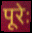
पूरेः